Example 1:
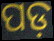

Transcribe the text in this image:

ପଡ଼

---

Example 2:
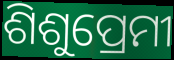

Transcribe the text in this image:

ଶିଶୁପ୍ରେମୀ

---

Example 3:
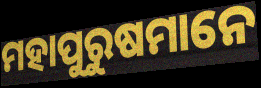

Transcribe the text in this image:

ମହାପୁରୁଷମାନେ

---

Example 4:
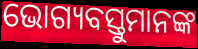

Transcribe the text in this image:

ଭୋଗ୍ୟବସ୍ତୁମାନଙ୍କ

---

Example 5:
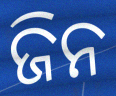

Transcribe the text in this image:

ଜିନ